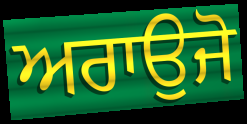
ਅਰਾਉਜੋ